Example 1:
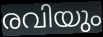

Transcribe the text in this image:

രവിയും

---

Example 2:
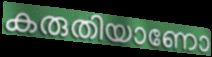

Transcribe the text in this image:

കരുതിയാണോ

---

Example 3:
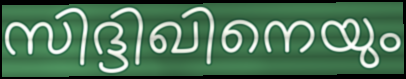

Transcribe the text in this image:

സിദ്ദിഖിനെയും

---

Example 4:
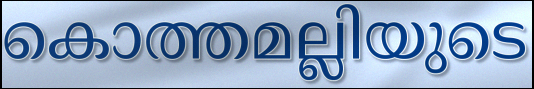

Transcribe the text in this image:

കൊത്തമല്ലിയുടെ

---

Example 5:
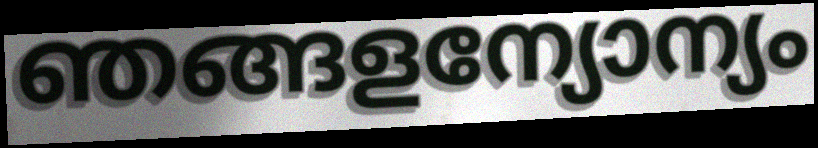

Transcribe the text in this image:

ഞങ്ങളന്യോന്യം